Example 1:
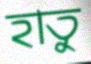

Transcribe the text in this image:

হাতু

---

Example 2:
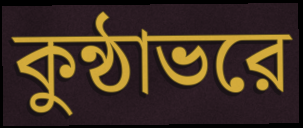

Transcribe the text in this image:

কুন্ঠাভরে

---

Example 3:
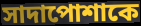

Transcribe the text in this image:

সাদাপোশাকে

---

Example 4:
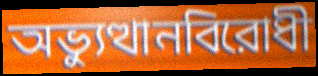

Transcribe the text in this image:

অভ্যুত্থানবিরোধী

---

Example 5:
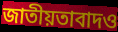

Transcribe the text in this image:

জাতীয়তাবাদও